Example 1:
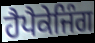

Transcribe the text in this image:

ਹੈਪੈਕੇਜਿੰਗ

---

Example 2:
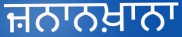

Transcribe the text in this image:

ਜ਼ਨਾਨਖ਼ਾਨਾ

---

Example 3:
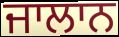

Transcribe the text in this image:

ਜਾਲਾਨ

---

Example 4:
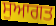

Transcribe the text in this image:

ਸੁਆਗਤ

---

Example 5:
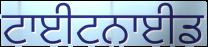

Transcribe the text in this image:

ਟਾਈਟਨਾਈਡ